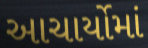
આચાર્યોમાં